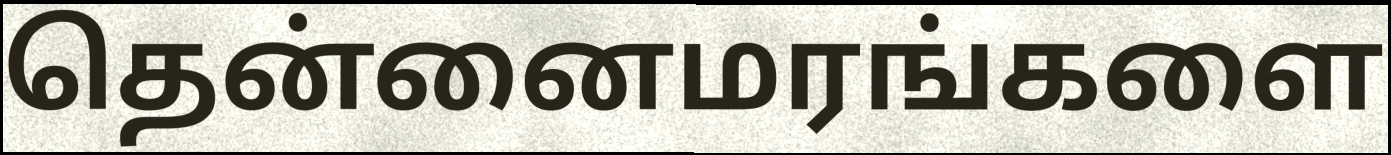
தென்னைமரங்களை